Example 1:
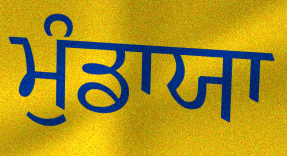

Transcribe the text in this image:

ਮੁੰਡਾਯਾ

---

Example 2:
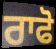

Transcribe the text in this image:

ਰਾਫੋ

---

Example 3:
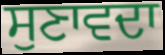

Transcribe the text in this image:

ਸੁਣਾਵਦਾ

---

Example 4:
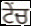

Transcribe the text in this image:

ਟੇਂਚ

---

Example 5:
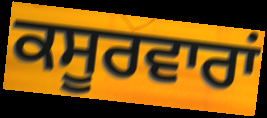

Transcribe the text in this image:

ਕਸੂਰਵਾਰਾਂ